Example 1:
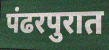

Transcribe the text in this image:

पंढरपुरात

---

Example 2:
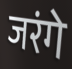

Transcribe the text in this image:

जरंगे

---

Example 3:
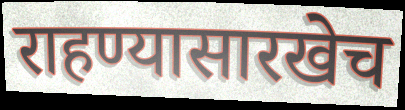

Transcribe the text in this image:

राहण्यासारखेच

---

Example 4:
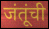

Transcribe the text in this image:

जंतूंची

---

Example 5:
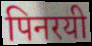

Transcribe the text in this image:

पिनरयी